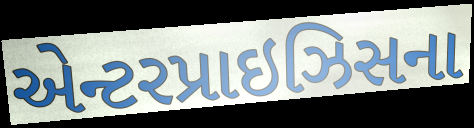
એન્ટરપ્રાઇઝિસના